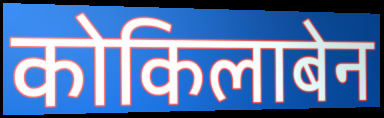
कोकिलाबेन